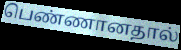
பெண்ணானதால்